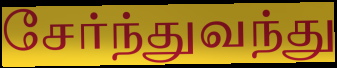
சேர்ந்துவந்து